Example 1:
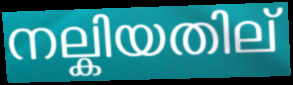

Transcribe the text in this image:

നല്കിയതില്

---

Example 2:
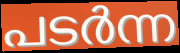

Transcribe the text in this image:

പടർന്ന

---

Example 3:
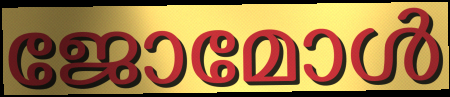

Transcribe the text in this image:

ജോമോൾ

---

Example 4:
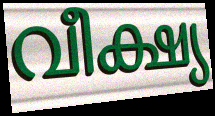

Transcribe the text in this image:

വീക്ഷ്യ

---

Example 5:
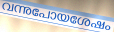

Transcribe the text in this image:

വന്നുപോയശേഷം